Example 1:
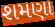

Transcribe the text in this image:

શમણા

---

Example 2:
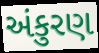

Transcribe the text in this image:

અંકુરણ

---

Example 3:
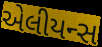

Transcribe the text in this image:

એલીયન્સ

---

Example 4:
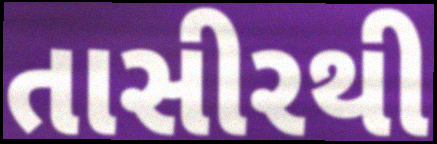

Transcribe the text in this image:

તાસીરથી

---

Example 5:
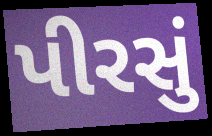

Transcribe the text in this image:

પીરસું